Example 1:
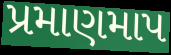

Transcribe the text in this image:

પ્રમાણમાપ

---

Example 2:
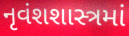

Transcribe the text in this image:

નૃવંશશાસ્ત્રમાં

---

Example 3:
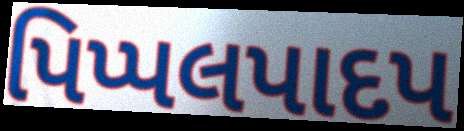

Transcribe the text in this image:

પિપ્પલપાદપ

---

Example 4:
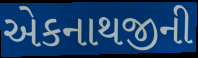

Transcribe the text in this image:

એકનાથજીની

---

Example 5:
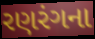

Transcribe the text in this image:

રણરંગના